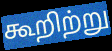
கூறிற்று